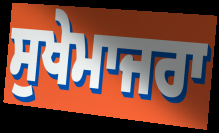
ਸੁਖੇਮਾਜਰਾ